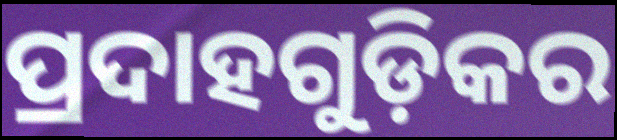
ପ୍ରଦାହଗୁଡ଼ିକର